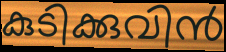
കുടിക്കുവിൻ